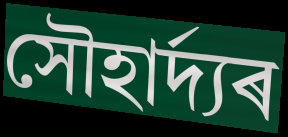
সৌহাৰ্দ্যৰ